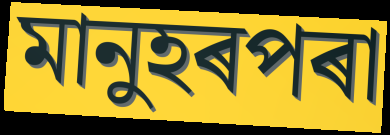
মানুহৰপৰা